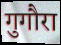
गुगौरा